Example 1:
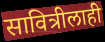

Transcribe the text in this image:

सावित्रीलाही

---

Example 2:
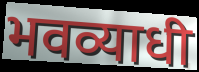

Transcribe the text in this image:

भवव्याधी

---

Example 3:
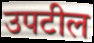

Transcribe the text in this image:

उपटील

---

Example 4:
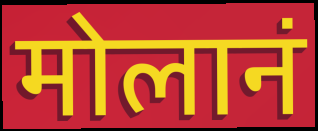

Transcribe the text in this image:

मोलानं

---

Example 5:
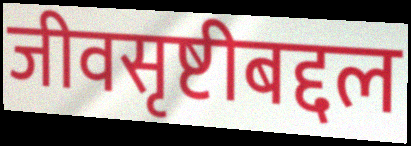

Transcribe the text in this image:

जीवसृष्टीबद्दल